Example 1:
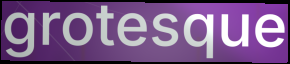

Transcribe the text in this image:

grotesque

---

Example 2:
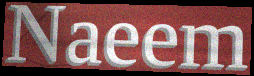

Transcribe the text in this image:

Naeem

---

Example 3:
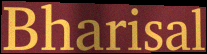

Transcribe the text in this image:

Bharisal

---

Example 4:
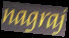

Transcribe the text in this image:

nagraj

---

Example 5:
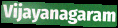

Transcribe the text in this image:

Vijayanagaram